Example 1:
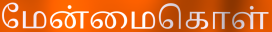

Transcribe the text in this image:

மேன்மைகொள்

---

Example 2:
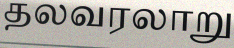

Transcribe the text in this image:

தலவரலாறு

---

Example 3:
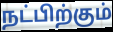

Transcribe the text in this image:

நட்பிற்கும்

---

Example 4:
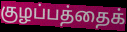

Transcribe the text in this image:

குழப்பத்தைக்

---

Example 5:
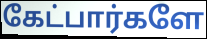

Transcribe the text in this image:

கேட்பார்களே